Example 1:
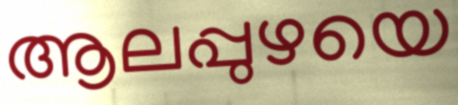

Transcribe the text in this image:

ആലപ്പുഴയെ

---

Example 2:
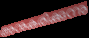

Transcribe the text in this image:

അനുകരിക്കുന്നു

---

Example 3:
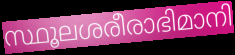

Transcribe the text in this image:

സ്ഥൂലശരീരാഭിമാനി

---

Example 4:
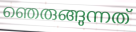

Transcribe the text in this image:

ഞെരുങ്ങുന്നത്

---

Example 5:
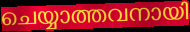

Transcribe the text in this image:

ചെയ്യാത്തവനായി